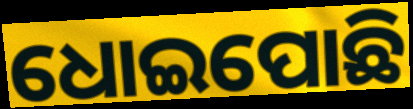
ଧୋଇପୋଛି